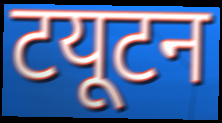
टयूटन